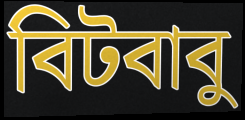
বিটবাবু